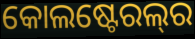
କୋଲଷ୍ଟେରଲ୍‌ର